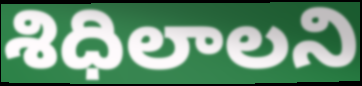
శిధిలాలని